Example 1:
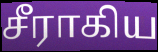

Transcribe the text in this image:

சீராகிய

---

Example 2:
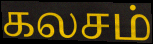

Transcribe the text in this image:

கலசம்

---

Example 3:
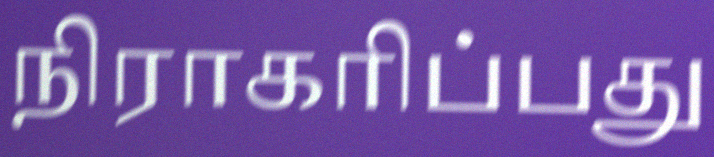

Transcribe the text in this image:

நிராகரிப்பது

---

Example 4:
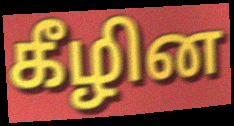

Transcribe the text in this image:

கீழின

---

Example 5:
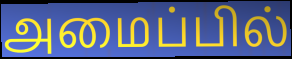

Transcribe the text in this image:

அமைப்பில்